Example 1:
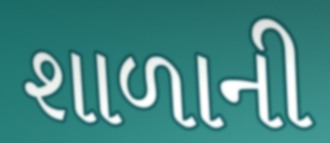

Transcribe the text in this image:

શાળાની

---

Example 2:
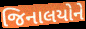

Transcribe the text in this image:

જિનાલયોને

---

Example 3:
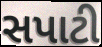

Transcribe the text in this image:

સપાટી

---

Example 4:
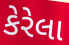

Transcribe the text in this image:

કેરેલા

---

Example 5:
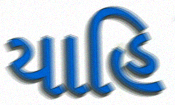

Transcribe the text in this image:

યાહિ